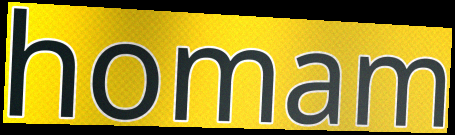
homam